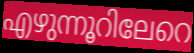
എഴുന്നൂറിലേറെ